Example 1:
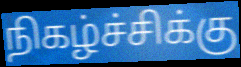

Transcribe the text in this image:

நிகழ்ச்சிக்கு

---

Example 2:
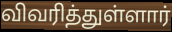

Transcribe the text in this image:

விவரித்துள்ளார்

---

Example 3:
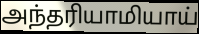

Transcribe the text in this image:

அந்தரியாமியாய்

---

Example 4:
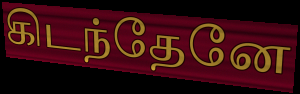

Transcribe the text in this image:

கிடந்தேனே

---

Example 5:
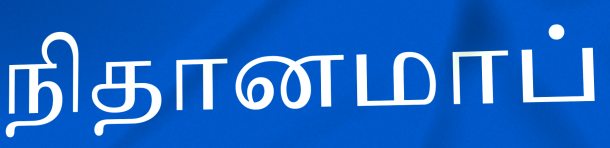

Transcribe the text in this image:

நிதானமாப்